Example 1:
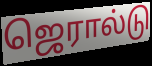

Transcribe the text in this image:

ஜெரால்டு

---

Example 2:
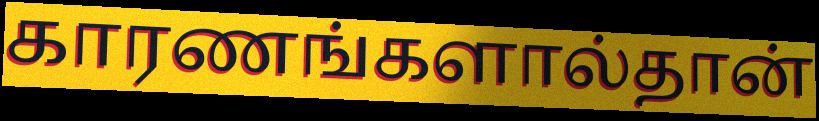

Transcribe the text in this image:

காரணங்களால்தான்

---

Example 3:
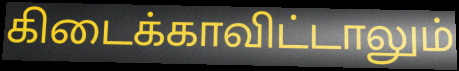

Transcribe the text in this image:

கிடைக்காவிட்டாலும்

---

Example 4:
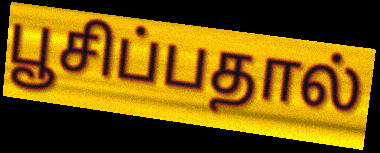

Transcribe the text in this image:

பூசிப்பதால்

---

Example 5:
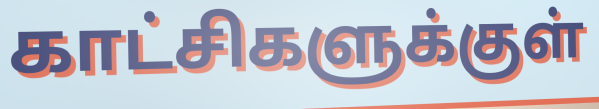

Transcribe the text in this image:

காட்சிகளுக்குள்